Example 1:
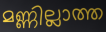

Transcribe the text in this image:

മണ്ണില്ലാത്ത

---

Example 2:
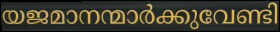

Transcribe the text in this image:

യജമാനന്മാർക്കുവേണ്ടി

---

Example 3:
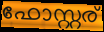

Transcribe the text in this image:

ഫോസ്റ്റര്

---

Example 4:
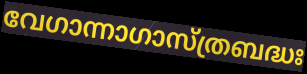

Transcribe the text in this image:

വേഗാന്നാഗാസ്ത്രബദ്ധഃ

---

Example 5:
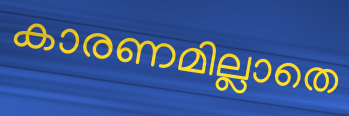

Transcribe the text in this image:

കാരണമില്ലാതെ